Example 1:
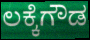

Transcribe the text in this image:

ಲಕ್ಕೆಗೌಡ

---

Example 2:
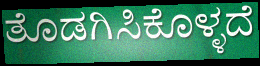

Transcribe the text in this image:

ತೊಡಗಿಸಿಕೊಳ್ಳದೆ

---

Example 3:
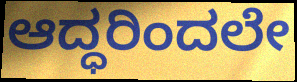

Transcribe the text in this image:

ಆದ್ಧರಿಂದಲೇ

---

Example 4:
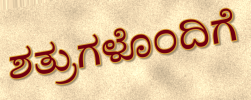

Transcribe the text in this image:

ಶತ್ರುಗಳೊಂದಿಗೆ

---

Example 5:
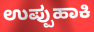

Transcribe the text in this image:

ಉಪ್ಪುಹಾಕಿ